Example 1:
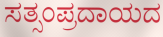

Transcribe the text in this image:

ಸತ್ಸಂಪ್ರದಾಯದ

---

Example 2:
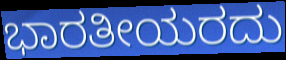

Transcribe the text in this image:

ಭಾರತೀಯರದು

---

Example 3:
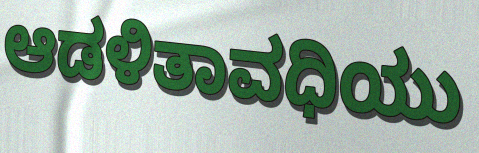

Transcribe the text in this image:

ಆಡಳಿತಾವಧಿಯು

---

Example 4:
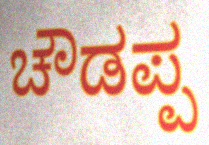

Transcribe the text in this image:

ಚೌಡಪ್ಪ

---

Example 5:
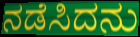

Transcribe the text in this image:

ನಡೆಸಿದನು